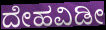
ದೇಹವಿಡೀ